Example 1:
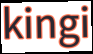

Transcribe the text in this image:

kingi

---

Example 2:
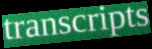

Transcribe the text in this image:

transcripts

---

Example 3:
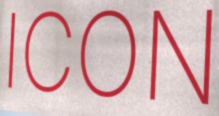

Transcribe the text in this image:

ICON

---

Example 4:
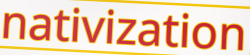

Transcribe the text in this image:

nativization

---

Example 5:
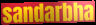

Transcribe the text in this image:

sandarbha